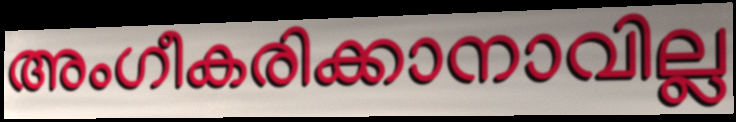
അംഗീകരിക്കാനാവില്ല